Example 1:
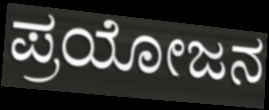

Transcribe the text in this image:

ಪ್ರಯೋಜನ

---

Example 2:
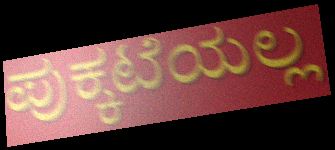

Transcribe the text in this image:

ಪುಕ್ಕಟೆಯಲ್ಲ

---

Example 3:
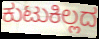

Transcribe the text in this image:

ಕುಟುಕಿಲ್ಲದ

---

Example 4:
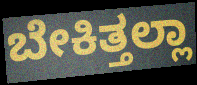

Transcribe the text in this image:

ಬೇಕಿತ್ತಲ್ಲಾ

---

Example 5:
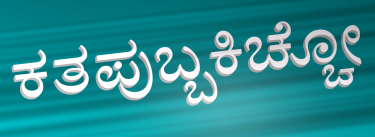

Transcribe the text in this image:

ಕತಪುಬ್ಬಕಿಚ್ಚೋ